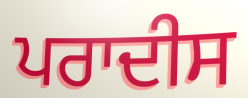
ਪਰਾਦੀਸ